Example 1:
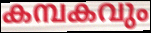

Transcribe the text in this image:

കമ്പകവും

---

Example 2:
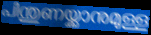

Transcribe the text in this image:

പിന്തുണയ്ക്കാനുമുള്ള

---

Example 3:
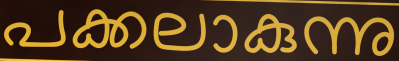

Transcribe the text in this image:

പക്കലാകുന്നു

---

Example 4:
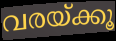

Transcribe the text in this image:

വരയ്ക്കൂ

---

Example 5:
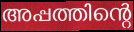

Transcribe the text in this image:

അപ്പത്തിന്റെ